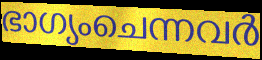
ഭാഗ്യംചെന്നവർ